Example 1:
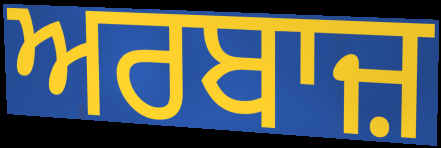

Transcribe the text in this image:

ਅਰਬਾਜ਼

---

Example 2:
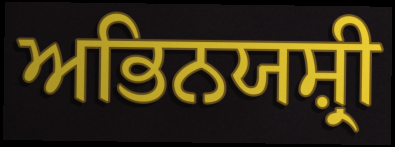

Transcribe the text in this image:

ਅਭਿਨਯਸ਼੍ਰੀ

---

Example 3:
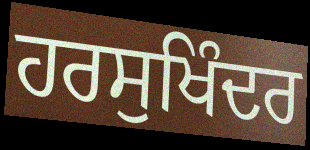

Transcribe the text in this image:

ਹਰਸੁਖਿੰਦਰ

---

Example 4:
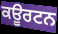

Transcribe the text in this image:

ਕਊਰਟਨ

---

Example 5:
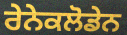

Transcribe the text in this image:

ਰੇਨੇਕਲੋਡੇਨ